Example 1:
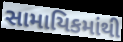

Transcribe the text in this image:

સામાયિકમાંથી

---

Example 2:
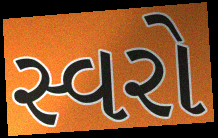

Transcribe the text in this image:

સ્વરો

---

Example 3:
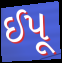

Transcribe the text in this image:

ઈપૂ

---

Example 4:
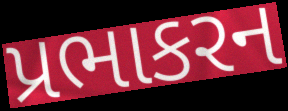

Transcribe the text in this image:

પ્રભાકરન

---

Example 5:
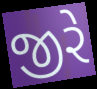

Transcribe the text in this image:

જીરે